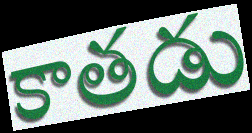
కాతడు